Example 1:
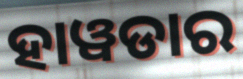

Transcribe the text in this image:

ହାୱଡାର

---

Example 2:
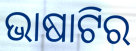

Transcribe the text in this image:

ଭାଷାଟିର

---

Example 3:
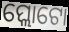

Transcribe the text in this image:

ପ୍ଲୋଟୋ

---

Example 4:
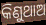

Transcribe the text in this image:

କିଣୁଥାଅ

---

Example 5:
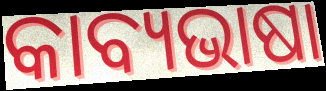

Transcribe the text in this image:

କାବ୍ୟଭାଷା